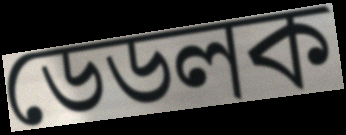
ডেডলক